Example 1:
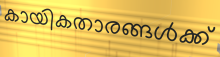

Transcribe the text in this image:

കായികതാരങ്ങൾക്ക്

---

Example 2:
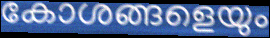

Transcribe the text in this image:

കോശങ്ങളെയും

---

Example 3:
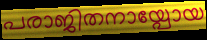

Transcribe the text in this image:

പരാജിതനായ്പോയ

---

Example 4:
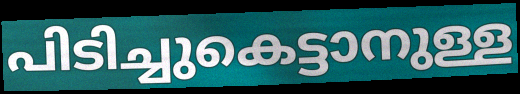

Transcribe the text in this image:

പിടിച്ചുകെട്ടാനുള്ള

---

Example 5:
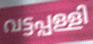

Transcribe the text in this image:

വട്ടപ്പള്ളി